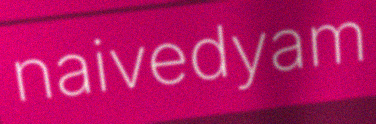
naivedyam